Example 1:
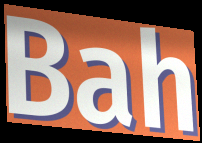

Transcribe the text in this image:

Bah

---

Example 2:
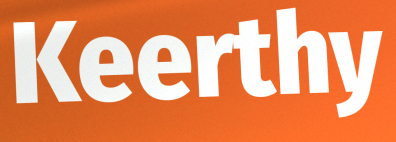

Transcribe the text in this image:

Keerthy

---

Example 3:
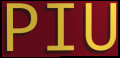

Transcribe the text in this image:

PIU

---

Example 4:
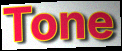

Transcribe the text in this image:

Tone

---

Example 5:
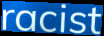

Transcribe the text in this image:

racist